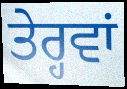
ਤੇਰ੍ਹਵਾਂ